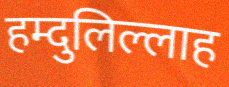
हम्दुलिल्लाह